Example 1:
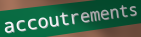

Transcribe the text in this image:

accoutrements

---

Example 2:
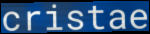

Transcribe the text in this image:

cristae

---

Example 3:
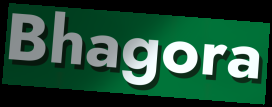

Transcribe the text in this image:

Bhagora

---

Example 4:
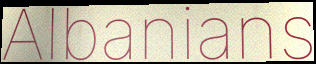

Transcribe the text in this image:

Albanians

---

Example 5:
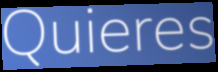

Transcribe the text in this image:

Quieres